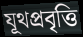
যূথপ্রবৃত্তি